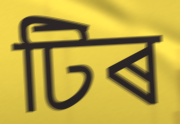
টিৰ